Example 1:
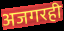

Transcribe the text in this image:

अजगरही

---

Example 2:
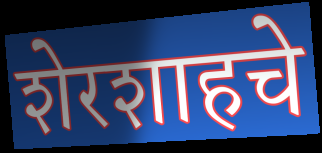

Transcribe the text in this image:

शेरशाहचे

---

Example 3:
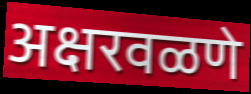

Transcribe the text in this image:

अक्षरवळणे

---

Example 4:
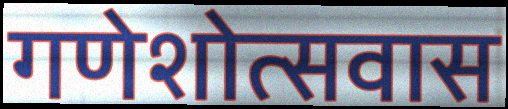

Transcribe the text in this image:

गणेशोत्सवास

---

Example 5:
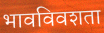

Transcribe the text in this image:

भावविवशता